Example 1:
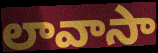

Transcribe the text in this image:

లావాసా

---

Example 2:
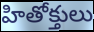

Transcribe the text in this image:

హితోక్తులు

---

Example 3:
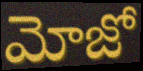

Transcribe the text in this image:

మోజో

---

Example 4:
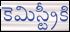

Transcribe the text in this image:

కెమిస్ట్రీకి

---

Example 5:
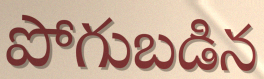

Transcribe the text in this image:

పోగుబడిన